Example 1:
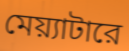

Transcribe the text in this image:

মেয়্যাটারে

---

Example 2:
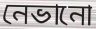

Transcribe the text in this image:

নেভানো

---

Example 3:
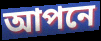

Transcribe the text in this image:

আপনে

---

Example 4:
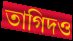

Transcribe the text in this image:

তাগিদও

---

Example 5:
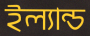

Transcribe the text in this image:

ইল্যান্ড